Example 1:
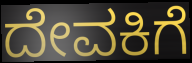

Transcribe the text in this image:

ದೇವಕಿಗೆ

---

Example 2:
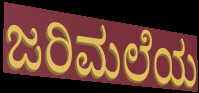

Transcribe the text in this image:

ಜರಿಮಲೆಯ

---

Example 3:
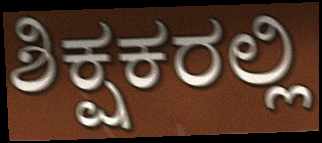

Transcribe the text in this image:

ಶಿಕ್ಷಕರಲ್ಲಿ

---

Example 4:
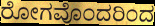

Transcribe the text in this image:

ರೋಗವೊಂದರಿಂದ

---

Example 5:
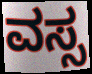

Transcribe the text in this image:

ವಸ್ಸ